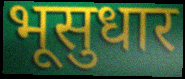
भूसुधार